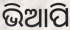
ଭିଆପି